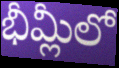
భీమ్లీలో